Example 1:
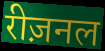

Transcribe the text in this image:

रीज़नल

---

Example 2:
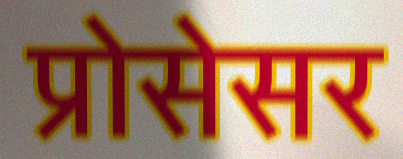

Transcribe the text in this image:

प्रोसेसर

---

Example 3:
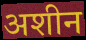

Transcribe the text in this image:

अशीन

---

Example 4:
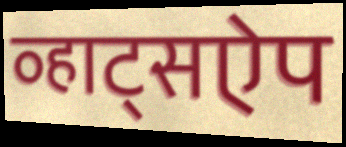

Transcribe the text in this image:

व्‍हाट्सऐप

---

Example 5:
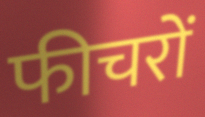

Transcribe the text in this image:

फीचरों